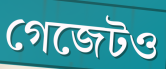
গেজেটও